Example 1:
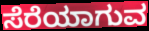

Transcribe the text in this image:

ಸೆರೆಯಾಗುವ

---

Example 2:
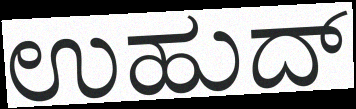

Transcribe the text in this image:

ಉಹುದ್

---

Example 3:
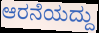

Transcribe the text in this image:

ಆರನೆಯದ್ದು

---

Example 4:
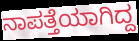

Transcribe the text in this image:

ನಾಪತ್ತೆಯಾಗಿದ್ದ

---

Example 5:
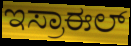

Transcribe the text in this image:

ಇಸ್ರಾಈಲ್